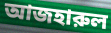
আজহারুল